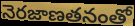
నెరజాణతనంతో